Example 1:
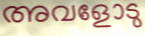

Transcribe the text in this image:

അവളോടു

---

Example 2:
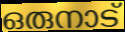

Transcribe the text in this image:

ഒരുനാട്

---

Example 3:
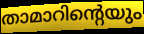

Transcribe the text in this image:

താമാറിന്റെയും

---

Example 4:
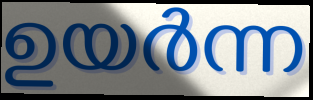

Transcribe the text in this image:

ഉയർന്ന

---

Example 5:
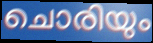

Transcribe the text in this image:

ചൊരിയും